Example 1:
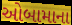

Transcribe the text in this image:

ઓબામાના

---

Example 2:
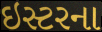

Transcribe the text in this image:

ઇસ્ટરના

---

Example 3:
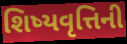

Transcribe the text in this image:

શિષ્યવૃત્તિની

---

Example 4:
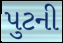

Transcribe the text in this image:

પુટની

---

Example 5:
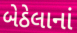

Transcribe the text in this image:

બેઠેલાનાં